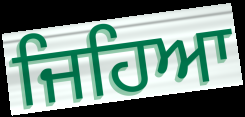
ਜਿਹਿਆ